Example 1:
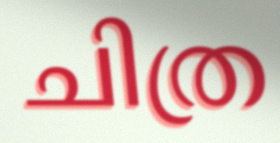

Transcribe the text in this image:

ചിത്ര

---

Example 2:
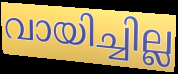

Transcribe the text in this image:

വായിച്ചില്ല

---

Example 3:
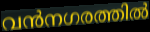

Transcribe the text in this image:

വൻനഗരത്തിൽ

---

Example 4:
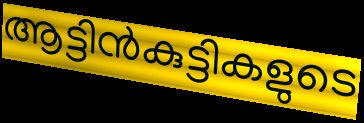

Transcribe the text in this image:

ആട്ടിൻകുട്ടികളുടെ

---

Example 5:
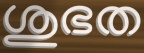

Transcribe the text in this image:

ശുഭത